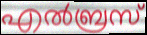
എൽബ്രസ്